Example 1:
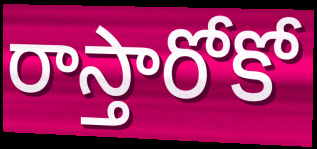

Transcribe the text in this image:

రాస్తారోకో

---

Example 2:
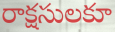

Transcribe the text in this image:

రాక్షసులకూ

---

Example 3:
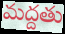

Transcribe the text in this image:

మద్దతు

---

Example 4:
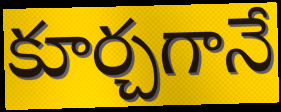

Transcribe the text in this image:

కూర్చగానే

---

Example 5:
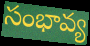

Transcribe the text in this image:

సంభావ్య